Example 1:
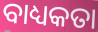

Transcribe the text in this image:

ବାଧ୍ୟକତା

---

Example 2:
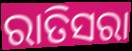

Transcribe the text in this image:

ରାତିସରା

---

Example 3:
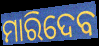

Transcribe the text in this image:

ମାରିଦେବ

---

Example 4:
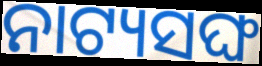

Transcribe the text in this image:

ନାଟ୍ୟସଙ୍ଘ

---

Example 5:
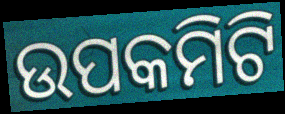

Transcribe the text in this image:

ଉପକମିଟି